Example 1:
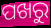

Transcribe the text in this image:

ପଖରୁ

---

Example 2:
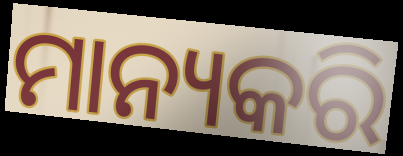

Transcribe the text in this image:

ମାନ୍ୟକରି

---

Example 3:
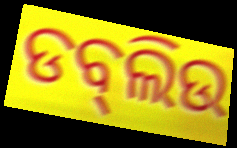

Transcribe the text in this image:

ଡବ୍‍ଲିଉ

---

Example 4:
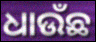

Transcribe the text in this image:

ଧାଉଁଛ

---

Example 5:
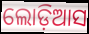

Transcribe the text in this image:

ଲୋଡ଼ିଆସ